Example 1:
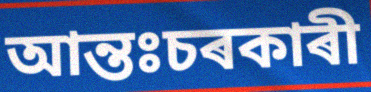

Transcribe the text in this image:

আন্তঃচৰকাৰী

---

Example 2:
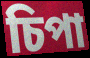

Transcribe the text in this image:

চিপা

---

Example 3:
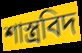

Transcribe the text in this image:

শাস্ত্ৰবিদ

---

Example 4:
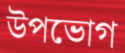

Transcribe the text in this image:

উপভোগ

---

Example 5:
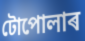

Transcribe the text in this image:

টোপোলাৰ